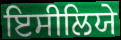
ਇਸੀਲਿਯੇ